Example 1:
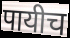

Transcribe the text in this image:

पायीच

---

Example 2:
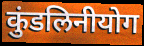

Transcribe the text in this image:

कुंडलिनीयोग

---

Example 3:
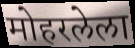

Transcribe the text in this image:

मोहरलेला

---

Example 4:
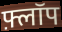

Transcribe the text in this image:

फ़्लॉप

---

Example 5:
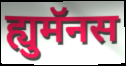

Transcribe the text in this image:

ह्युमॅनस